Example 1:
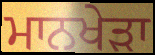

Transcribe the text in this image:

ਮਾਨਖੇੜਾ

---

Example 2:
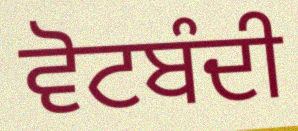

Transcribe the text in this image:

ਵੋਟਬੰਦੀ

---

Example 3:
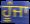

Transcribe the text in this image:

ਹੂੰਜਾ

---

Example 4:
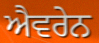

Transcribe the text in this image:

ਐਵਰੇਨ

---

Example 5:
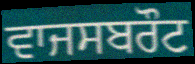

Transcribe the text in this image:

ਵਾਜਸਬਰੌਟ